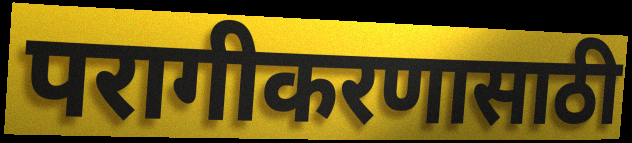
परागीकरणासाठी